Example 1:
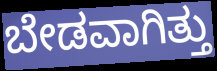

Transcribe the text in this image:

ಬೇಡವಾಗಿತ್ತು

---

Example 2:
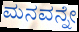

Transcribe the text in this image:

ಮನವನ್ನೇ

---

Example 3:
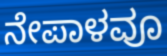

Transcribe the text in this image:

ನೇಪಾಳವೂ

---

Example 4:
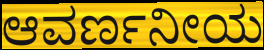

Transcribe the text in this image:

ಆವರ್ಣನೀಯ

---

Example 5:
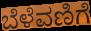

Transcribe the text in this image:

ಬೆಳೆವಣಿಗೆ